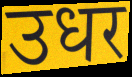
उधर